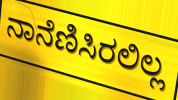
ನಾನೆಣಿಸಿರಲಿಲ್ಲ